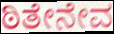
ಠಿತೇನೇವ